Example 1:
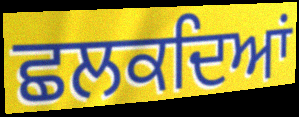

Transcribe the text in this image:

ਛਲਕਦਿਆਂ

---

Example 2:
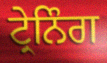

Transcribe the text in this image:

ਟ੍ਰੇਨਿੰਗ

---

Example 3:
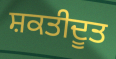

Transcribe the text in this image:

ਸ਼ਕਤੀਦੂਤ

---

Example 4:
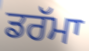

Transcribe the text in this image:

ਡਰੱਮਾ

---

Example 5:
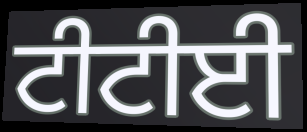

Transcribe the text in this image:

ਟੀਟੀਈ